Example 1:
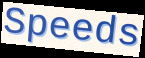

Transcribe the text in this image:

Speeds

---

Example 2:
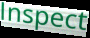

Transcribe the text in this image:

Inspect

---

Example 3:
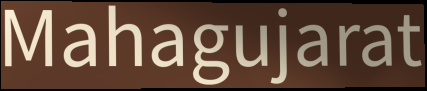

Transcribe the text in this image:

Mahagujarat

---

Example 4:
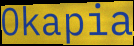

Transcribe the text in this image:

Okapia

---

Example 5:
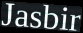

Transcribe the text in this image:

Jasbir